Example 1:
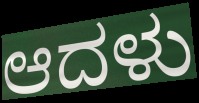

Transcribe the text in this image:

ಆದಳು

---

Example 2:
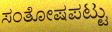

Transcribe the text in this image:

ಸಂತೋಷಪಟ್ಟು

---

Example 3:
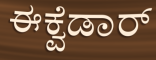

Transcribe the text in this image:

ಈಕ್ವೆಡಾರ್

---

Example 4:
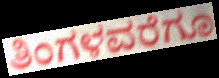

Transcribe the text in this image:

ತಿಂಗಳವರೆಗೂ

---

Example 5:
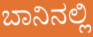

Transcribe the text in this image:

ಬಾನಿನಲ್ಲಿ